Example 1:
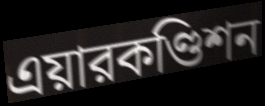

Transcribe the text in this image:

এয়ারকণ্ডিশন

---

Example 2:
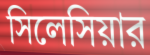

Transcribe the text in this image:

সিলেসিয়ার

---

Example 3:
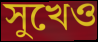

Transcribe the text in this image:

সুখেও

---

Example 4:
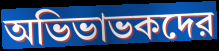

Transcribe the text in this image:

অভিভাভকদের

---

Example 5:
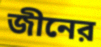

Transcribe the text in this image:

জীনের